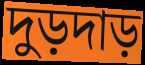
দুড়দাড়